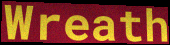
Wreath